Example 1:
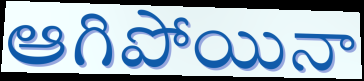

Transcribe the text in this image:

ఆగిపోయినా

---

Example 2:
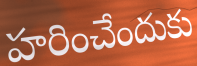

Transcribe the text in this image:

హరించేందుకు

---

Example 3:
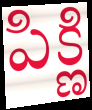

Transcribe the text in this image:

పిక్ణి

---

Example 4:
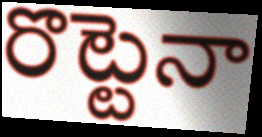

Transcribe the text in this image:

రొట్టెనా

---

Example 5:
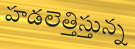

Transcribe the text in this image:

హడలెత్తిస్తున్న